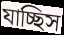
যাচ্ছিস